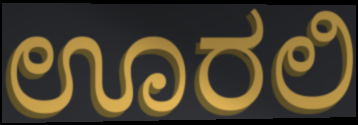
ಊರಲಿ